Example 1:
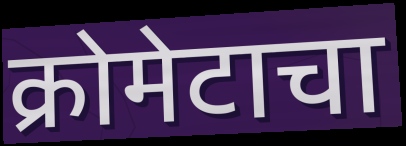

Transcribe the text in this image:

क्रोमेटाचा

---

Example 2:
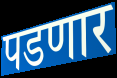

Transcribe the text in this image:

पडणार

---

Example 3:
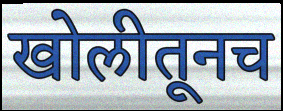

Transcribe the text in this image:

खोलीतूनच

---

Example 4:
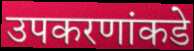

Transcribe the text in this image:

उपकरणांकडे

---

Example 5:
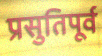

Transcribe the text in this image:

प्रसुतिपूर्व